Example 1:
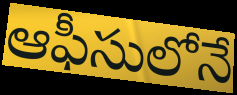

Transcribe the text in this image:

ఆఫీసులోనే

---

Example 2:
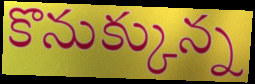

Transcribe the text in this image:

కొనుక్కున్న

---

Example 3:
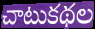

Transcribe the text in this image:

చాటుకథల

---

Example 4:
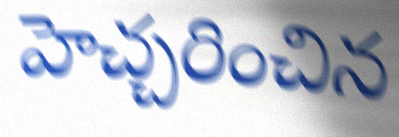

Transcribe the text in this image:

హెచ్చరించిన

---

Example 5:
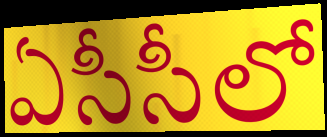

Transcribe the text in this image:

ఏసీసీలో